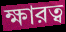
ক্ষারত্ব